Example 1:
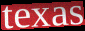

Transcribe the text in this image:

texas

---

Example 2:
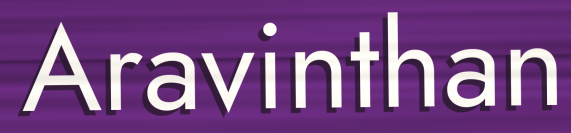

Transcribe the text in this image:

Aravinthan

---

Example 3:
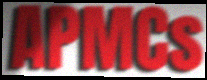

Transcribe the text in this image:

APMCs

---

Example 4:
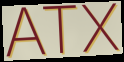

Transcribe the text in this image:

ATX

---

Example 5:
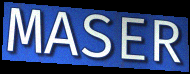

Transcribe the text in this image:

MASER